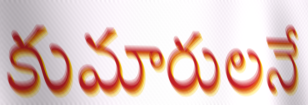
కుమారులనే